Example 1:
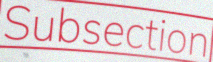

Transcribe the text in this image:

Subsection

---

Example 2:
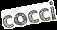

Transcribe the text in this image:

cocci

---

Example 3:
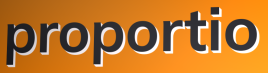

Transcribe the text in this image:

proportio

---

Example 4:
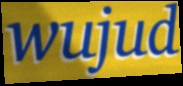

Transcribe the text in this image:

wujud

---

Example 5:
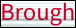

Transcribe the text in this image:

Brough